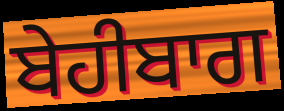
ਬੇਹੀਬਾਗ